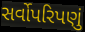
સર્વોપરિપણું